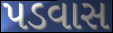
પડવાસ